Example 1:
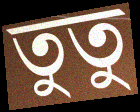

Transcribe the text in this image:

তুতু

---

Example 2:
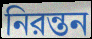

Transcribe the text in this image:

নিরন্তন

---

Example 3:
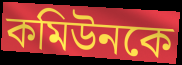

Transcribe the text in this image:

কমিউনকে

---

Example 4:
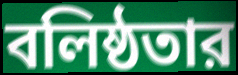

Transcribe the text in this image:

বলিষ্ঠতার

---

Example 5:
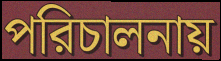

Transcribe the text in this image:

পরিচালনায়